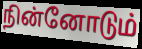
நின்னோடும்